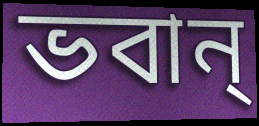
ভবান্